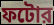
ফটোর